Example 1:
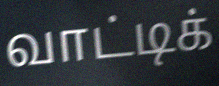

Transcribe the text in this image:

வாட்டிக்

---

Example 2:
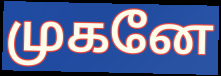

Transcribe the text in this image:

முகனே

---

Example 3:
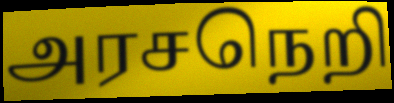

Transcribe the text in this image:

அரசநெறி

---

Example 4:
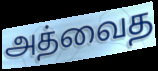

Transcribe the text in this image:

அத்வைத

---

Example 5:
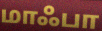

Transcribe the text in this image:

மாஃபா